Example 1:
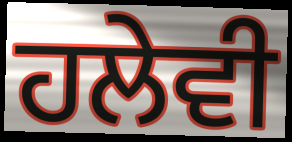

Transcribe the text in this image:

ਹਲੇਵੀ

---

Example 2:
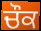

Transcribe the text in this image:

ਚੌਕ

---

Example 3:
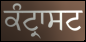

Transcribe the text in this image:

ਕੰਟ੍ਰਾਸਟ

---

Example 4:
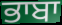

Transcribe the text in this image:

ਭਾਬਾ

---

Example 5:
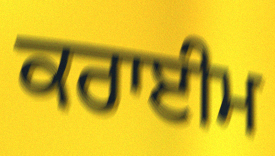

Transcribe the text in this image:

ਕਰਾਈਮ